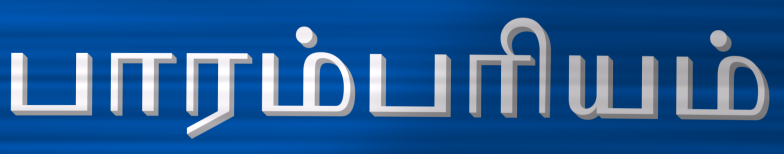
பாரம்பரியம்